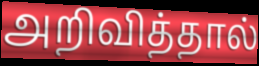
அறிவித்தால்